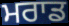
ਮਰਾਡ